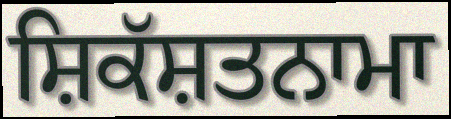
ਸ਼ਿਕੱਸ਼ਤਨਾਮਾ